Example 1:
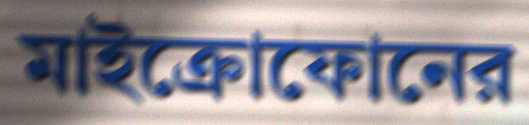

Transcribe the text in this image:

মাইক্রোফোনের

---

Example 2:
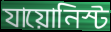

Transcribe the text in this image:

যায়োনিস্ট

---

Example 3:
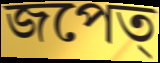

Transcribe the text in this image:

জপেত্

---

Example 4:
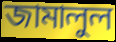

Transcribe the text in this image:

জামালুল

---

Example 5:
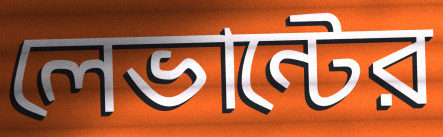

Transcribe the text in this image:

লেভান্টের